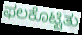
ಫಲಕೊಟ್ಟಿತು